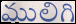
ములిగి